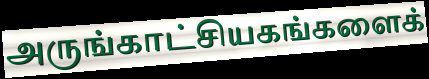
அருங்காட்சியகங்களைக்